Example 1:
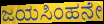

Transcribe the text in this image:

ಜಯಸಿಂಹನೇ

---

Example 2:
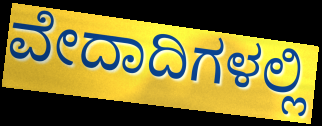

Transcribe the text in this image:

ವೇದಾದಿಗಳಲ್ಲಿ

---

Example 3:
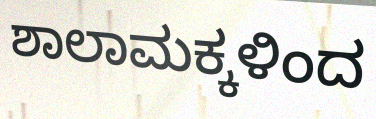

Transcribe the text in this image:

ಶಾಲಾಮಕ್ಕಳಿಂದ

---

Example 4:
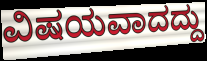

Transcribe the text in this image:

ವಿಷಯವಾದದ್ದು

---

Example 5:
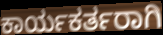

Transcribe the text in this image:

ಕಾರ್ಯಕರ್ತರಾಗಿ